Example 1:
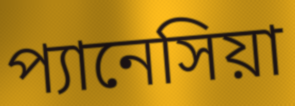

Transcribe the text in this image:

প্যানেসিয়া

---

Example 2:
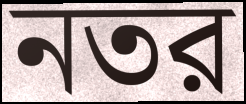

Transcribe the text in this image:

নতর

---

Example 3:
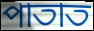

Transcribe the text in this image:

পাতাত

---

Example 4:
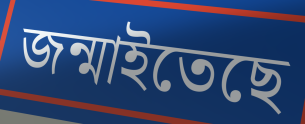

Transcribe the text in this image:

জন্মাইতেছে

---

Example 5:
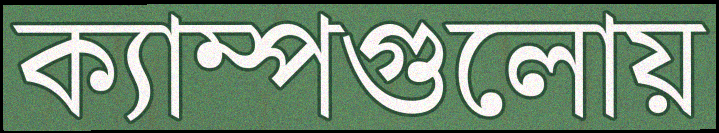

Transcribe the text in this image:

ক্যাম্পগুলোয়